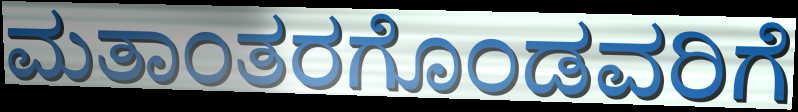
ಮತಾಂತರಗೊಂಡವರಿಗೆ